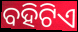
ବହିଟିଏ